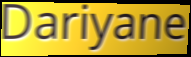
Dariyane